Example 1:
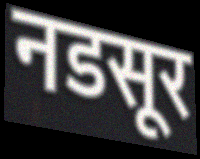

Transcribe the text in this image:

नडसूर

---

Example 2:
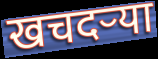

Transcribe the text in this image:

खचदऱ्या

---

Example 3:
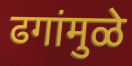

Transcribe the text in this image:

ढगांमुळे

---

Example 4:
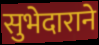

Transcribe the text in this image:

सुभेदाराने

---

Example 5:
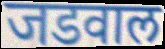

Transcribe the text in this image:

जडवाल